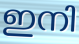
ഇനി